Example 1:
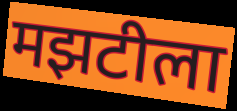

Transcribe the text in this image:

मझटीला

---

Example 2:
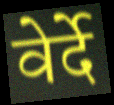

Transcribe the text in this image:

वेर्दे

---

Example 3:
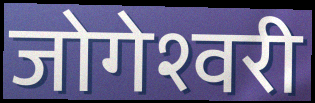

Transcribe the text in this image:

जोगेश्वरी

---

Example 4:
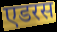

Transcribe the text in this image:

एडरस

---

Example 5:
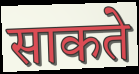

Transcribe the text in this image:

साकते